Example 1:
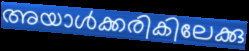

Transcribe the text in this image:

അയാൾക്കരികിലേക്കു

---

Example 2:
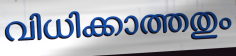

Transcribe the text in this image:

വിധിക്കാത്തതും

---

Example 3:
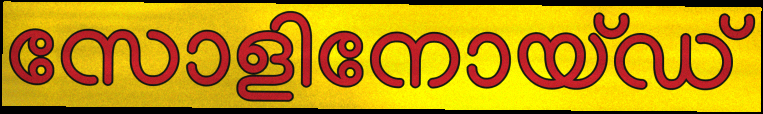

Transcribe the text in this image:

സോളിനോയ്ഡ്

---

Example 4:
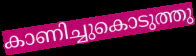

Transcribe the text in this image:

കാണിച്ചുകൊടുത്തു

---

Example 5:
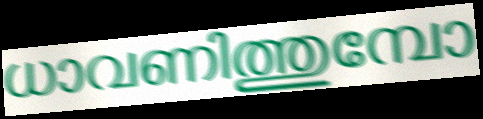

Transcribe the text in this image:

ധാവണിത്തുമ്പോ